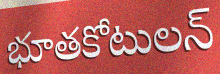
భూతకోటులన్